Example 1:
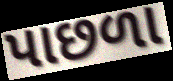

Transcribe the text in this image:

પાછળા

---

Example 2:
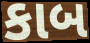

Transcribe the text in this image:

કાબ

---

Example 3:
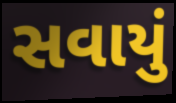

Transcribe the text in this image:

સવાયું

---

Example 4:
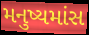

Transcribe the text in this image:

મનુષ્યમાંસ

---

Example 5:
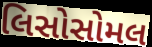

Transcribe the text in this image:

લિસોસોમલ